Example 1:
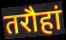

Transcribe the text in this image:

तरौहां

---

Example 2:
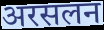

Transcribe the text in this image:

अरसलन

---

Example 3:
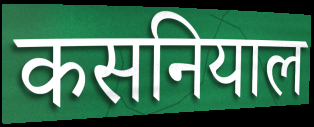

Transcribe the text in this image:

कसनियाल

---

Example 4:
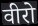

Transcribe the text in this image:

वीरो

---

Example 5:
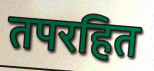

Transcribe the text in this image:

तपरहित